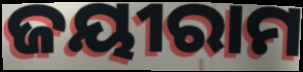
ଜୟୀରାମ